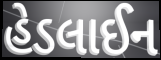
હેડલાઈન